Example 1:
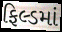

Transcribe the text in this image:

ફિલ્ડમાં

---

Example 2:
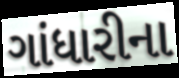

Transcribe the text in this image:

ગાંધારીના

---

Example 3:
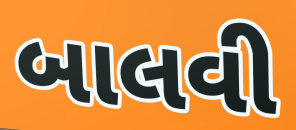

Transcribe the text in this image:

બાલવી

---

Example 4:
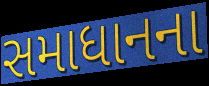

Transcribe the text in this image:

સમાધાનના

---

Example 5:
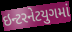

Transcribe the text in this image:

ઇન્ટરનેટયુગમાં